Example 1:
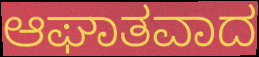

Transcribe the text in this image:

ಆಘಾತವಾದ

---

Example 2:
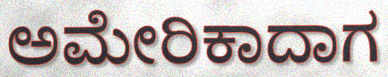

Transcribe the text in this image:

ಅಮೇರಿಕಾದಾಗ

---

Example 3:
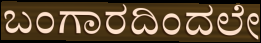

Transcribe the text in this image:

ಬಂಗಾರದಿಂದಲೇ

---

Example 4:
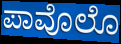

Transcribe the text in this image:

ಪಾವೊಲೊ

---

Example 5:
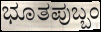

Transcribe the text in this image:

ಭೂತಪುಬ್ಬಂ